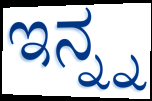
ಇನ್ನ್ನ